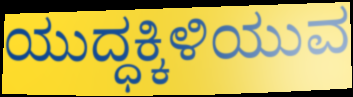
ಯುದ್ಧಕ್ಕಿಳಿಯುವ